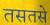
तसतसे